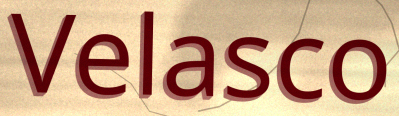
Velasco